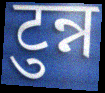
टुन्न